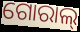
ଗୋରାଲ୍